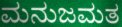
ಮನುಜಮತ